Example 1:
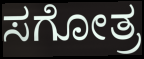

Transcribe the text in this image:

ಸಗೋತ್ರ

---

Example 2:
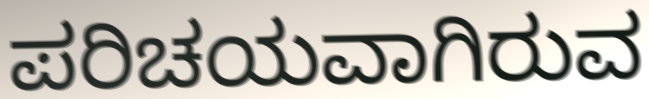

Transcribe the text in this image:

ಪರಿಚಯವಾಗಿರುವ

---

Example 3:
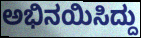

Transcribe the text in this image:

ಅಭಿನಯಿಸಿದ್ದು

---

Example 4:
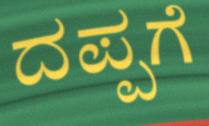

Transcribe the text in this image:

ದಪ್ಪಗೆ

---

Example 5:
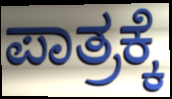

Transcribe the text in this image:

ಪಾತ್ರಕ್ಕೆ